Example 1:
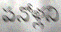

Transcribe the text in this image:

పనోళ్లని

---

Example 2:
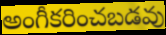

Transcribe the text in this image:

అంగీకరించబడవు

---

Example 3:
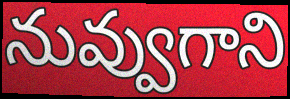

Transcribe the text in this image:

నువ్వుగాని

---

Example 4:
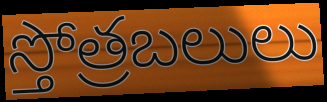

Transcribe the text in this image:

స్తోత్రబలులు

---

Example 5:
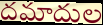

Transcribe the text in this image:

దమాదుల